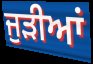
ਜੁੜੀਆਂ